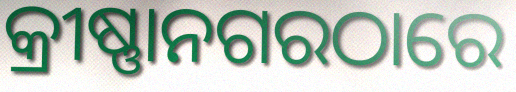
କ୍ରୀଷ୍ଣାନଗରଠାରେ